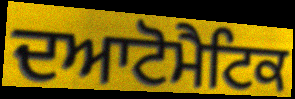
ਦਆਟੋਮੈਟਿਕ